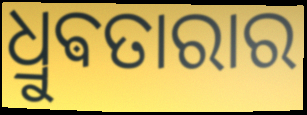
ଧ୍ରୁଵତାରାର